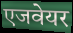
एजवेयर